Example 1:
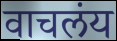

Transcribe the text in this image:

वाचलंय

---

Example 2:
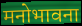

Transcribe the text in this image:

मनोभावना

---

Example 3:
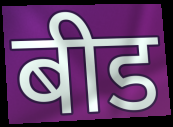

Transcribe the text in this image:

बीड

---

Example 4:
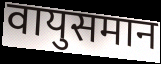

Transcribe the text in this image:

वायुसमान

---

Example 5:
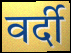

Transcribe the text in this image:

वर्दी